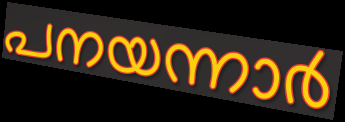
പനയന്നാർ